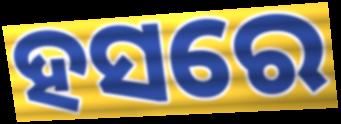
ହସରେ